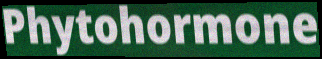
Phytohormone